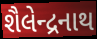
શૈલેન્દ્રનાથ